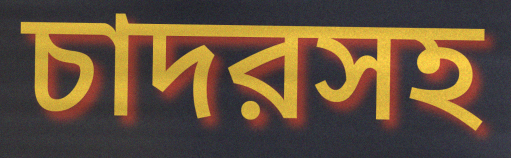
চাদরসহ